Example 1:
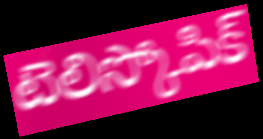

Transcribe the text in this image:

టెలిస్కోపిక్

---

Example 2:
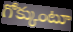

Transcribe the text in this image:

గోక్కుంటూ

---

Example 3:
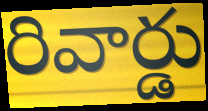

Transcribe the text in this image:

రివార్డు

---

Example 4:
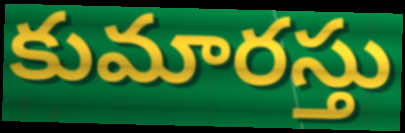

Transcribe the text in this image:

కుమారస్తు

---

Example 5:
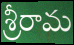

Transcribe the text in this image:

శ్రీరామ